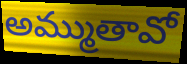
అమ్ముతావో